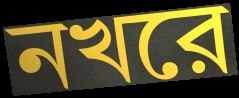
নখরে